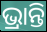
ଭ୍ରାନ୍ତି